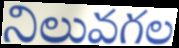
నిలువగల